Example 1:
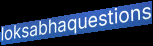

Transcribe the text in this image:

loksabhaquestions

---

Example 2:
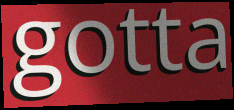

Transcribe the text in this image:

gotta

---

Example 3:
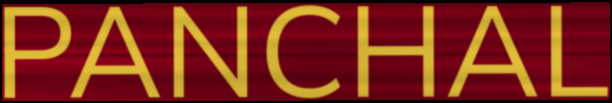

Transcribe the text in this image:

PANCHAL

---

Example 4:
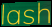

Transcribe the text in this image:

lash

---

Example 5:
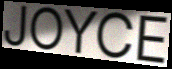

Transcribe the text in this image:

JOYCE